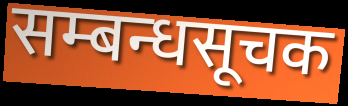
सम्बन्धसूचक